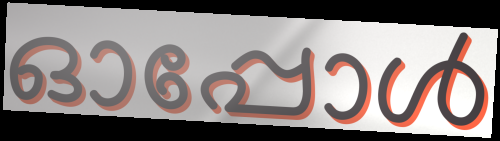
ഓപ്പോൾ